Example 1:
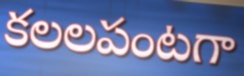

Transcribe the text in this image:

కలలపంటగా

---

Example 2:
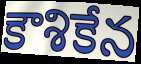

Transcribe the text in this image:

కౌశికేన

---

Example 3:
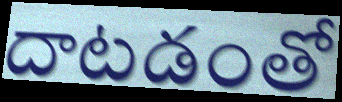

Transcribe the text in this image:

దాటడంతో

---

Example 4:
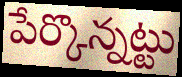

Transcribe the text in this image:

పేర్కొన్నట్టు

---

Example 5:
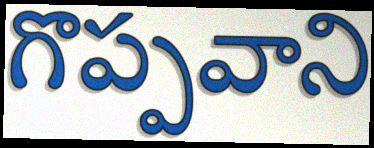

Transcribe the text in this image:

గొప్పవాని